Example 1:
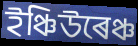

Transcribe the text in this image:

ইঞ্চিউৰেঞ্চ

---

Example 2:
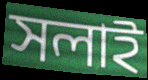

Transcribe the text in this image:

সলাই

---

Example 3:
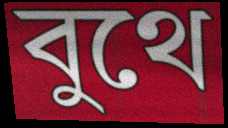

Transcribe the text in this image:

বুথে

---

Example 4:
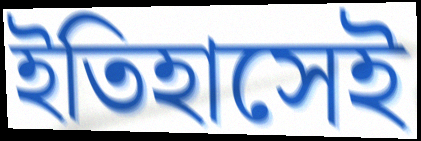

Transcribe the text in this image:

ইতিহাসেই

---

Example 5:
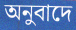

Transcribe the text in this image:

অনুবাদে